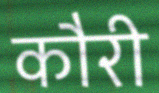
कौरी